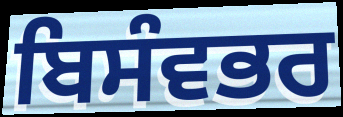
ਬਿਸੰਵਭਰ